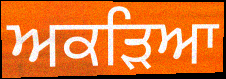
ਅਕੜਿਆ